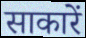
साकारें